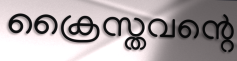
ക്രൈസ്തവന്റെ